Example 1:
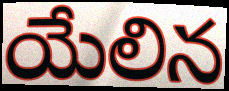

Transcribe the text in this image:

యేలిన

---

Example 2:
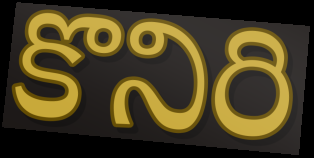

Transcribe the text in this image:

కొనిరి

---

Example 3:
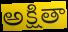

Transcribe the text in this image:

అక్షితా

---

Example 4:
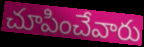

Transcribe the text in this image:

చూపించేవారు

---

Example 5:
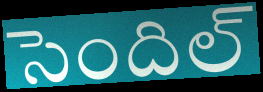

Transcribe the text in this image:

సెందిల్